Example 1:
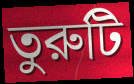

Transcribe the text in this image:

তুরুটি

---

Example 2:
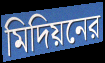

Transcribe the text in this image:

মিদিয়নের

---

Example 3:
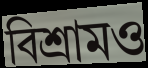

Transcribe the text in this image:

বিশ্রামও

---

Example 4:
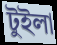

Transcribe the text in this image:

টুইলা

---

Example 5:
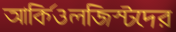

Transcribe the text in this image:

আর্কিওলজিস্টদের